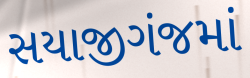
સયાજીગંજમાં